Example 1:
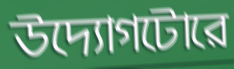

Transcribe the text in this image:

উদ্যোগটোৱে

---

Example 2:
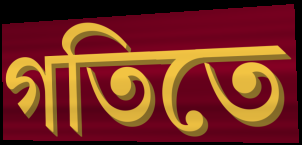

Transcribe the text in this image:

গতিতে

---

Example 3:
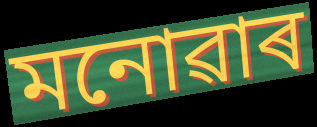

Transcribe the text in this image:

মনোৱাৰ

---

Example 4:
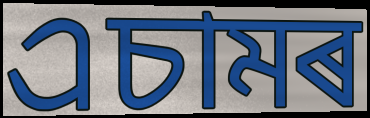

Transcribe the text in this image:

এচামৰ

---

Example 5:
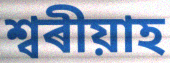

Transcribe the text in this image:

শ্বৰীয়াহ